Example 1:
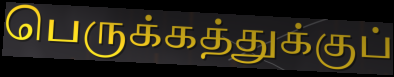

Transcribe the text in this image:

பெருக்கத்துக்குப்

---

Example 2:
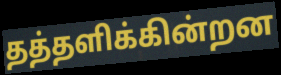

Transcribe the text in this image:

தத்தளிக்கின்றன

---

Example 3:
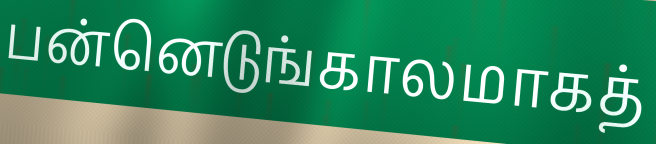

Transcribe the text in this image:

பன்னெடுங்காலமாகத்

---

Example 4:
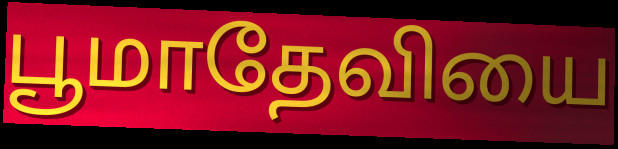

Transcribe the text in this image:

பூமாதேவியை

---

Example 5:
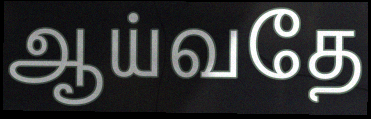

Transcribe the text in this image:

ஆய்வதே